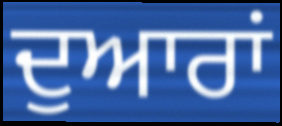
ਦੁਆਰਾਂ